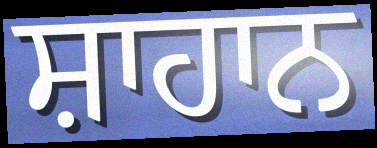
ਸ਼ਾਹਾਨ